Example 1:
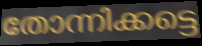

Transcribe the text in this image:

തോന്നിക്കട്ടെ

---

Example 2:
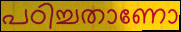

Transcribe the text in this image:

പഠിച്ചതാണോ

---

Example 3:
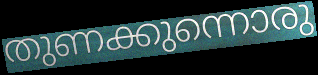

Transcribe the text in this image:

തുണക്കുന്നൊരു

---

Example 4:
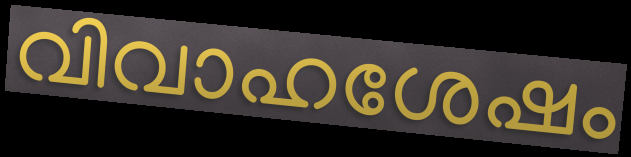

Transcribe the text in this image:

വിവാഹശേഷം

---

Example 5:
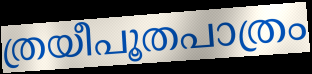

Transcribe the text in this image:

ത്രയീപൂതപാത്രം